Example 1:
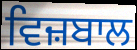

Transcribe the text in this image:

ਵਿਜ਼ਬਾਲ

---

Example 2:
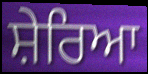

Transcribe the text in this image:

ਸ਼ੇਰਿਆ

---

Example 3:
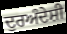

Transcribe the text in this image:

ਦੁਰਅੰਦੇਸ਼ੀ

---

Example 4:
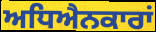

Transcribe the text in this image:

ਅਧਿਐਨਕਾਰਾਂ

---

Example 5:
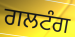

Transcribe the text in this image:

ਗਲਟੰਗ